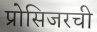
प्रोसिजरची